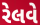
રેલવે